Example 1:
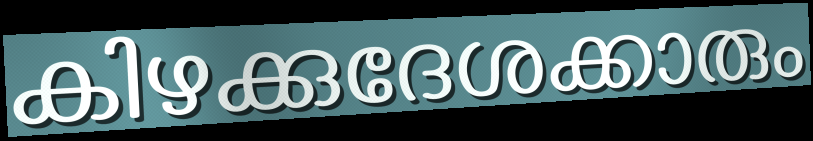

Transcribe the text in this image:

കിഴക്കുദേശക്കാരും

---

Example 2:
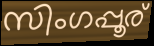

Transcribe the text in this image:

സിംഗപ്പൂര്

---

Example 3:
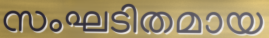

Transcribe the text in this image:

സംഘടിതമായ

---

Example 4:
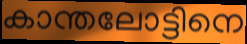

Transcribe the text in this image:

കാന്തലോട്ടിനെ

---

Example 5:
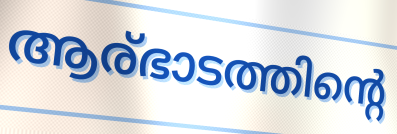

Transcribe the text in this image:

ആര്ഭാടത്തിന്റെ